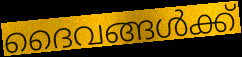
ദൈവങ്ങൾക്ക്